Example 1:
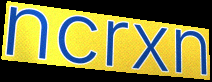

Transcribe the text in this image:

ncrxn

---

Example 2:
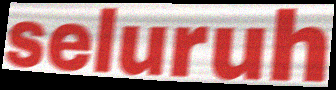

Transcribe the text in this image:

seluruh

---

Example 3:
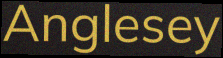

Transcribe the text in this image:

Anglesey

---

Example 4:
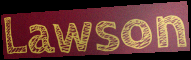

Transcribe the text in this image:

Lawson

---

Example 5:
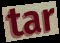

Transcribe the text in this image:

tar